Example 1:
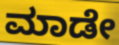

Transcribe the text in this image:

ಮಾಡೇ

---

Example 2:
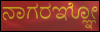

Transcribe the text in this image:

ನಾಗರಞ್ಞೋ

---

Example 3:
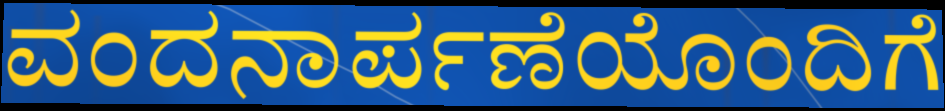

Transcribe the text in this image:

ವಂದನಾರ್ಪಣೆಯೊಂದಿಗೆ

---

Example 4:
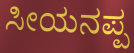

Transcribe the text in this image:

ಸೀಯನಪ್ಪ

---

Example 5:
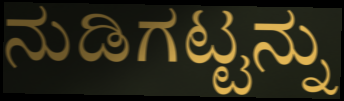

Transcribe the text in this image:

ನುಡಿಗಟ್ಟನ್ನು